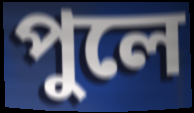
পুলে